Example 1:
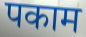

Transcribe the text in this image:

पकाम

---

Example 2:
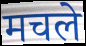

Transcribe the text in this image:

मचले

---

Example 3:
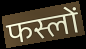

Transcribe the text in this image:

फस्लों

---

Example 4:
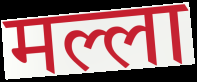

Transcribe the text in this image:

मल्ला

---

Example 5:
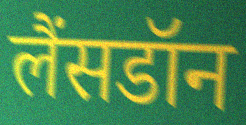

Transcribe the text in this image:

लैंसडॉन